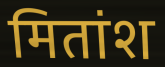
मितांश